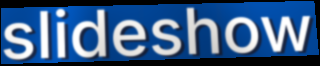
slideshow